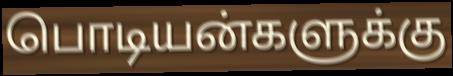
பொடியன்களுக்கு